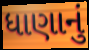
ધાણાનું